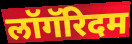
लॉगॅरिदम